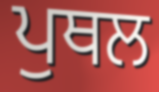
ਪੁਥਲ